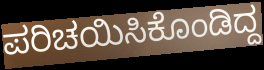
ಪರಿಚಯಿಸಿಕೊಂಡಿದ್ದ